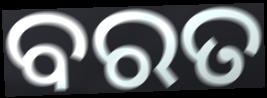
ବରତ